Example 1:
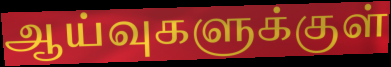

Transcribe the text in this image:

ஆய்வுகளுக்குள்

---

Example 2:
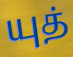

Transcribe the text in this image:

யுத்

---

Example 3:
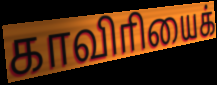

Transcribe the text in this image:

காவிரியைக்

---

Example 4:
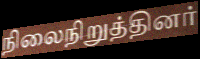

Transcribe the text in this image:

நிலைநிறுத்தினர்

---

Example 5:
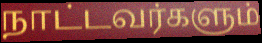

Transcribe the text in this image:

நாட்டவர்களும்